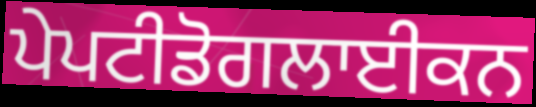
ਪੇਪਟੀਡੋਗਲਾਈਕਨ